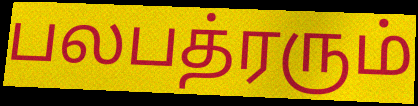
பலபத்ரரும்